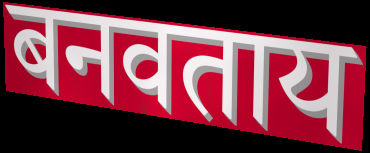
बनवताय